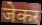
जेकर